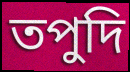
তপুদি